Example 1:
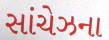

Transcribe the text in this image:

સાંચેઝના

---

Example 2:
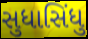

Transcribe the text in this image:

સુધાસિંધુ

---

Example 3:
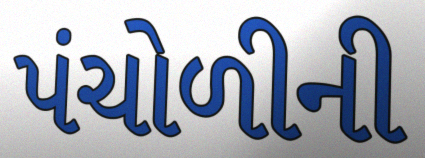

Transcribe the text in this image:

પંચોળીની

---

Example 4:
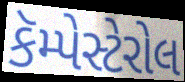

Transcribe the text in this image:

કૅમ્પેસ્ટેરોલ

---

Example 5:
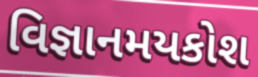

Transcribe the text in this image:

વિજ્ઞાનમયકોશ